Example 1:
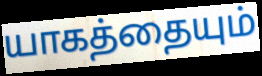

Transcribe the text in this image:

யாகத்தையும்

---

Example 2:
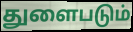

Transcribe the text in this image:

துளைபடும்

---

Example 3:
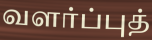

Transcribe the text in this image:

வளர்ப்புத்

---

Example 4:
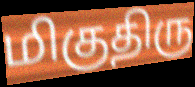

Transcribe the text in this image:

மிகுதிரு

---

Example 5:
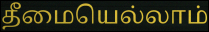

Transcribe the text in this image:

தீமையெல்லாம்